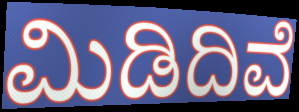
ಮಿಡಿದಿವೆ